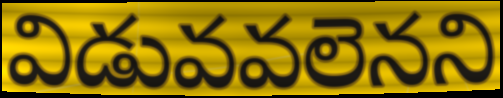
విడువవలెనని